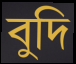
বুদি